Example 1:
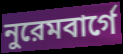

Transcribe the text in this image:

নুরেমবার্গে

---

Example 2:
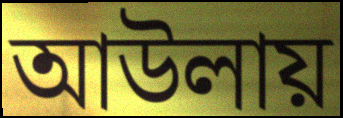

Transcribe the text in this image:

আউলায়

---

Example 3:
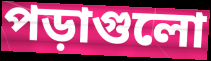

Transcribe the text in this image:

পড়াগুলো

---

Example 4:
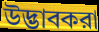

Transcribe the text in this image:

উদ্ভাবকরা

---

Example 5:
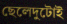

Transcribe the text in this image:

ছেলেদুটোই